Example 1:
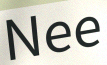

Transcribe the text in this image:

Nee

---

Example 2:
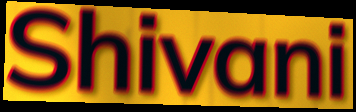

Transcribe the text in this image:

Shivani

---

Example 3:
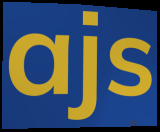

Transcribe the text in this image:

ajs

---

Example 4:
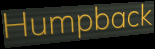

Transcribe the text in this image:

Humpback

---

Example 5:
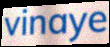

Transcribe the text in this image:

vinaye